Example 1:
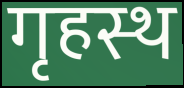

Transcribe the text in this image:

गृहस्थ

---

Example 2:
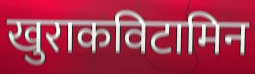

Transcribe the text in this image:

खुराकविटामिन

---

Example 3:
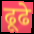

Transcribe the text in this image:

ढूढे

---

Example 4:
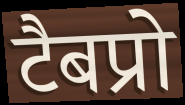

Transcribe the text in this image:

टैबप्रो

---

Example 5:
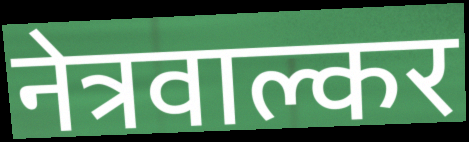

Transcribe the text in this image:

नेत्रवाल्कर